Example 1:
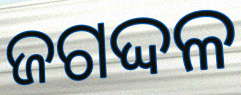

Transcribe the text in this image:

ଜଗଦ୍ଦଳ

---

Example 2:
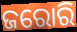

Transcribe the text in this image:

ଜରୋରି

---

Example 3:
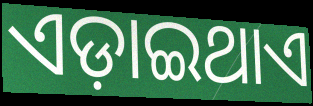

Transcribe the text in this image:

ଏଡ଼ାଇଥାଏ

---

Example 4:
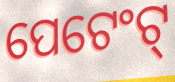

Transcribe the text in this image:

ପେଟେଂଟ୍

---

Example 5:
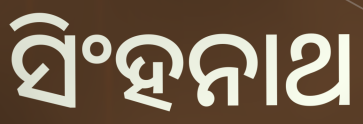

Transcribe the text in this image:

ସିଂହନାଥ